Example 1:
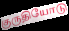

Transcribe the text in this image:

குருதியோடு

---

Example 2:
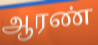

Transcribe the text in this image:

ஆரண்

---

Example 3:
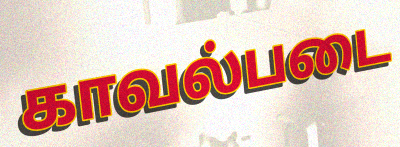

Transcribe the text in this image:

காவல்படை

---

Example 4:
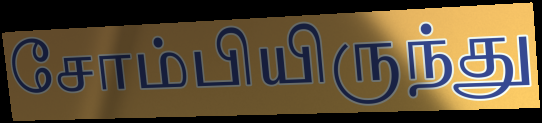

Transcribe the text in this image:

சோம்பியிருந்து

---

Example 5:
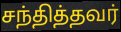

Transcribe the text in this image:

சந்தித்தவர்